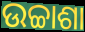
ଉଚ୍ଚାଶା